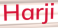
Harji